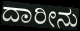
ದಾರೀನು